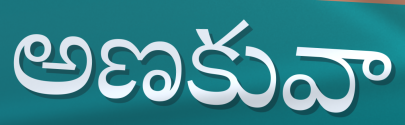
అణకువా